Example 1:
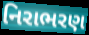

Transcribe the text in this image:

નિરાભરણ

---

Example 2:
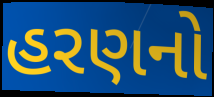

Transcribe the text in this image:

હરણનો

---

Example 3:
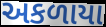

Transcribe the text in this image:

અકળાયા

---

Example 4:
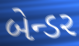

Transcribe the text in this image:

બેન્ડર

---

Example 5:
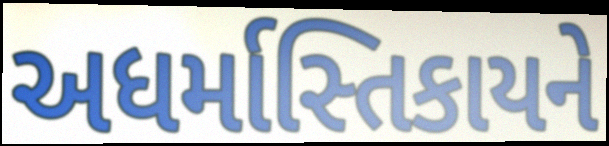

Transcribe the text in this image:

અધર્માસ્તિકાયને